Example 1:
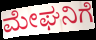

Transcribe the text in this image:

ಮೇಘನಿಗೆ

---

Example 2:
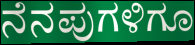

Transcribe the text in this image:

ನೆನಪುಗಳಿಗೂ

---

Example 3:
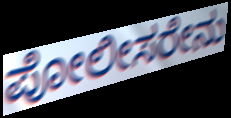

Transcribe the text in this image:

ಪೋಲೀಸರೇನು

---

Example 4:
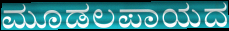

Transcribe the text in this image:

ಮೂಡಲಪಾಯದ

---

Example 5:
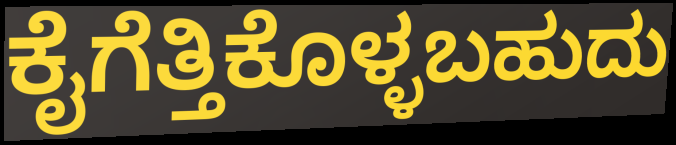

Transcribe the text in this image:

ಕೈಗೆತ್ತಿಕೊಳ್ಳಬಹುದು